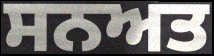
ਸਨਅਤ